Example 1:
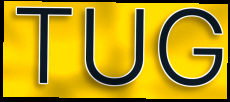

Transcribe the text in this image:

TUG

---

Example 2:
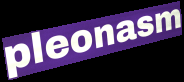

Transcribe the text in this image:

pleonasm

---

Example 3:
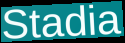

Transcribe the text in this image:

Stadia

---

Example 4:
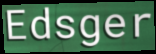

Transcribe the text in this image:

Edsger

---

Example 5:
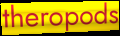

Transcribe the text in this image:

theropods